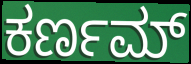
ಕರ್ಣಮ್